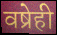
वष्रेही